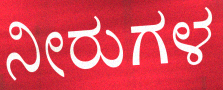
ನೀರುಗಳ